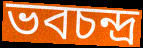
ভবচন্দ্র